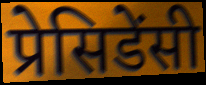
प्रेसिडेंसी